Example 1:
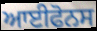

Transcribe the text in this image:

ਆਈਫੋਨਸ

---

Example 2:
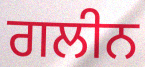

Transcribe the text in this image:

ਗਲੀਨ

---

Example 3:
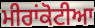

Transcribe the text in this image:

ਮੀਰਾਂਕੋਟੀਆ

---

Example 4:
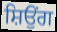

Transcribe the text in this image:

ਸ਼ਿਉਂਗ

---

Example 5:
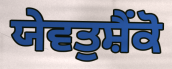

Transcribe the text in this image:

ਯੇਵਤੁਸ਼ੈਂਕੋ